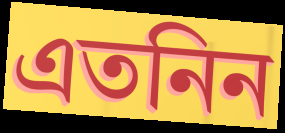
এতনিন